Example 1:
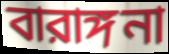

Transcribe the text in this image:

বারাঙ্গনা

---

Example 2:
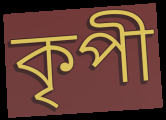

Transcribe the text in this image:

কৃপী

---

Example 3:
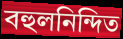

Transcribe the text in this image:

বহুলনিন্দিত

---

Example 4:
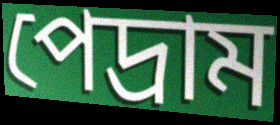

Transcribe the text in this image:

পেদ্রাম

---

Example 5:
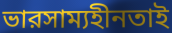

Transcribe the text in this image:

ভারসাম্যহীনতাই